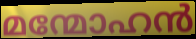
മന്മോഹൻ